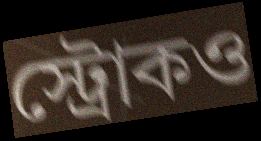
স্ট্রোকও